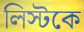
লিস্টকে